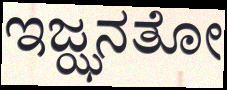
ಇಜ್ಝನತೋ